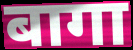
बागा